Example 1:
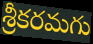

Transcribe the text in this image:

శ్రీకరమగు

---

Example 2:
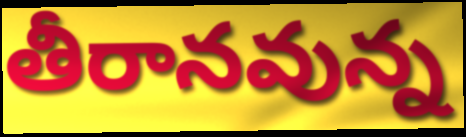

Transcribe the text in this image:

తీరానవున్న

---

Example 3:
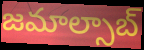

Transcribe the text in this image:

జమాల్సాబ్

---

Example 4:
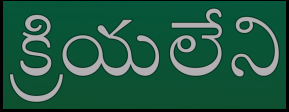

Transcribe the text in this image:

క్రియలేని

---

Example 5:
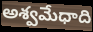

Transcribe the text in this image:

అశ్వమేధాది